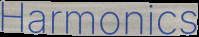
Harmonics